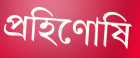
প্রহিণোষি